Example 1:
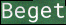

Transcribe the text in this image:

Beget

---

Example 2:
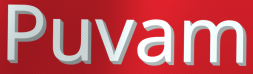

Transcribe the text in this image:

Puvam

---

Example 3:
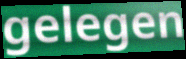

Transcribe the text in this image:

gelegen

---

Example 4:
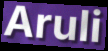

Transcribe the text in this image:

Aruli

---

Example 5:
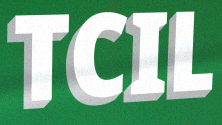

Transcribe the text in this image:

TCIL